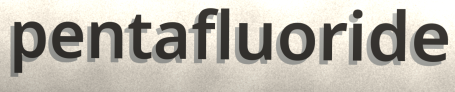
pentafluoride